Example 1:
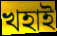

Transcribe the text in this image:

খহাই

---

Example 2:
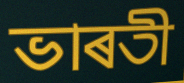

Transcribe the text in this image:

ভাৰতী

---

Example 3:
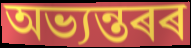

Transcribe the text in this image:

অভ্যন্তৰৰ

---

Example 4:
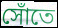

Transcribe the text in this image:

সোঁতে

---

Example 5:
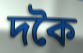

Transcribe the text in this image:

দকৈ